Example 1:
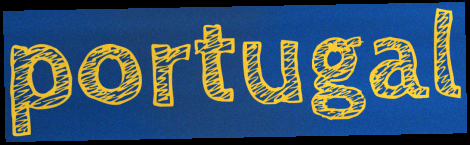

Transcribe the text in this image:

portugal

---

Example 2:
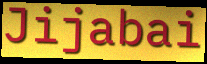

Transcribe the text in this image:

Jijabai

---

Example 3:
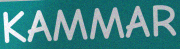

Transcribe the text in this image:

KAMMAR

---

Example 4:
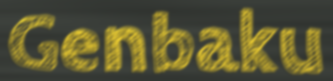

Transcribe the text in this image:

Genbaku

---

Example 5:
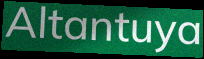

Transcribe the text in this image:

Altantuya